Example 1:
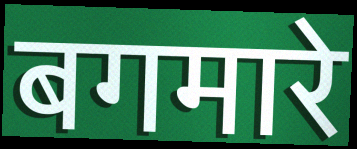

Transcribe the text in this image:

बगमारे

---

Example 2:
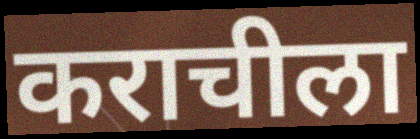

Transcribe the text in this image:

कराचीला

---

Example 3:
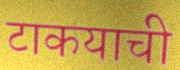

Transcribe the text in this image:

टाकयाची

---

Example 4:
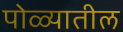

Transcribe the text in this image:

पोळ्यातील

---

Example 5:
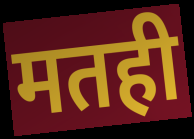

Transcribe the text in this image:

मतही